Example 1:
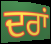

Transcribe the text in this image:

ਦਰਾਂ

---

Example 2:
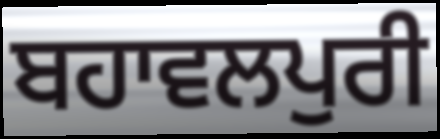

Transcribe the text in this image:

ਬਹਾਵਲਪੁਰੀ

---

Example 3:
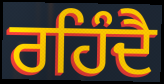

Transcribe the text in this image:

ਰਹਿੰਦੈ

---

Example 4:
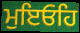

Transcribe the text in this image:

ਮੁਇਓਹਿ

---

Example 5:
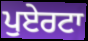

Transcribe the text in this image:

ਪੁਏਰਟਾ